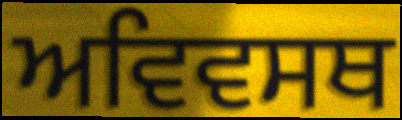
ਅਵਿਵਸਥ